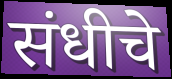
संधीचे